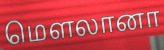
மௌலானா